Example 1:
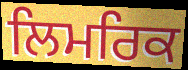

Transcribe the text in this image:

ਲਿਮਰਿਕ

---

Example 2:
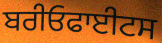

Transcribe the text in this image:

ਬਰੀਓਫਾਈਟਸ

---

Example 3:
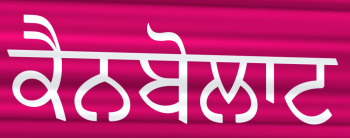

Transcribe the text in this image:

ਕੈਨਬੋਲਾਟ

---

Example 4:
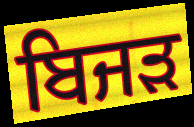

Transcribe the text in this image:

ਬਿਜੜ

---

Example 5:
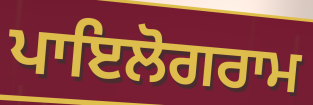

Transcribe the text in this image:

ਪਾਇਲੋਗਰਾਮ